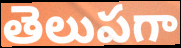
తెలుపగా